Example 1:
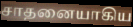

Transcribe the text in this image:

சாதனையாகிய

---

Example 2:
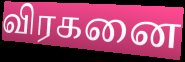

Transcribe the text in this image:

விரகனை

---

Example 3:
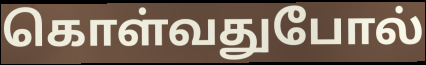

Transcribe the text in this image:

கொள்வதுபோல்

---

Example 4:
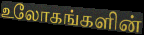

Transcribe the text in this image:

உலோகங்களின்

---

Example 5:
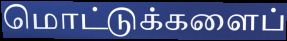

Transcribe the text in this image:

மொட்டுக்களைப்